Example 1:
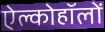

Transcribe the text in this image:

ऐल्कोहॉलों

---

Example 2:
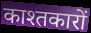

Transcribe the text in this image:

काश्तकारों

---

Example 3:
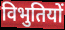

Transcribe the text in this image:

विभुतियों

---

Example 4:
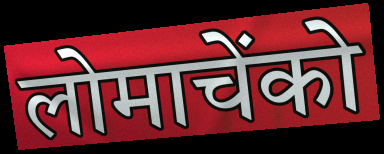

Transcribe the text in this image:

लोमाचेंको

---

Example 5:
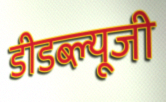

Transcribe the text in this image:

डीडब्ल्यूजी